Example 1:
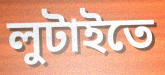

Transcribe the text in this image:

লুটাইতে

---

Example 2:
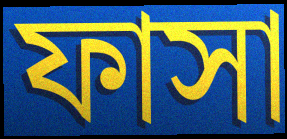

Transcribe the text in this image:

ফাসা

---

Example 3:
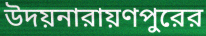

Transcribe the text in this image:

উদয়নারায়ণপুরের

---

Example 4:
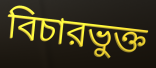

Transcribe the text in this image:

বিচারভুক্ত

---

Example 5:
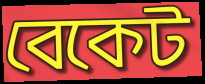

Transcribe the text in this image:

বেকেট